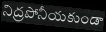
నిద్రపోనీయకుండా